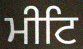
ਮੀਟਿ